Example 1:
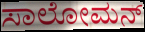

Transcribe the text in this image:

ಸಾಲೋಮನ್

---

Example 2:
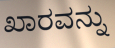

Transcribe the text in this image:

ಖಾರವನ್ನು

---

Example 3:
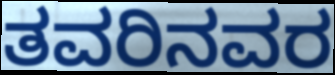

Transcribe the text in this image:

ತವರಿನವರ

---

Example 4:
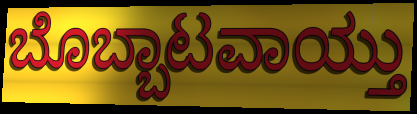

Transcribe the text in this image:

ಬೊಬ್ಬಾಟವಾಯ್ತು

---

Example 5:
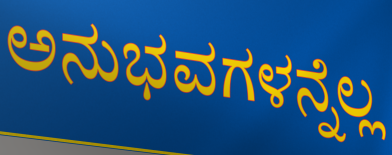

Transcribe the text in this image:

ಅನುಭವಗಳನ್ನೆಲ್ಲ